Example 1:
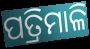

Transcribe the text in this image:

ପତ୍ରିମାଳି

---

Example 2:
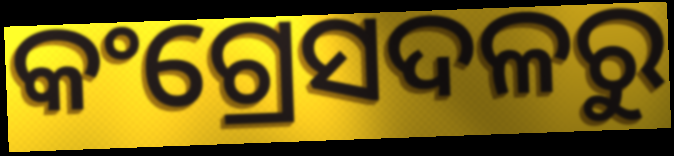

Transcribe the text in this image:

କଂଗ୍ରେସଦଳରୁ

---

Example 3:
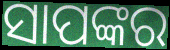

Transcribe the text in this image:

ସାପଙ୍କର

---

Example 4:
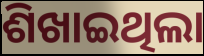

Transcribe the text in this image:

ଶିଖାଇଥିଲା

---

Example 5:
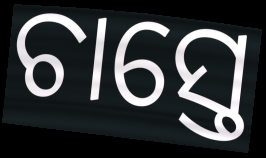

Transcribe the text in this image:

ଚାସ୍ତେ